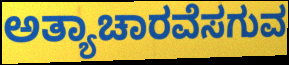
ಅತ್ಯಾಚಾರವೆಸಗುವ